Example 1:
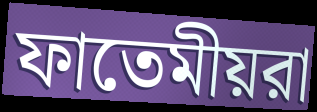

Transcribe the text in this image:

ফাতেমীয়রা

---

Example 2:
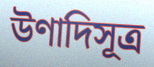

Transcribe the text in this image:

উণাদিসূত্র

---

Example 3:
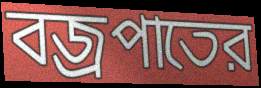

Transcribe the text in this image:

বজ্রপাতের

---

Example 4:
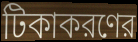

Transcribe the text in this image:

টিকাকরণের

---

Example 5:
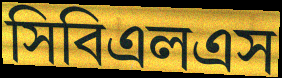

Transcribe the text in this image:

সিবিএলএস